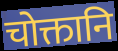
चोक्तानि